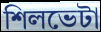
শিলভেটা